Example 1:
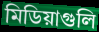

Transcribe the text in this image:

মিডিয়াগুলি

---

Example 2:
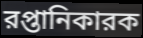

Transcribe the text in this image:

রপ্তানিকারক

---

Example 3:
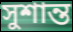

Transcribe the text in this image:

সুশান্ত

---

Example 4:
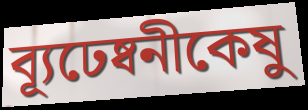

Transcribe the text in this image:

ব্যূঢেষ্বনীকেষু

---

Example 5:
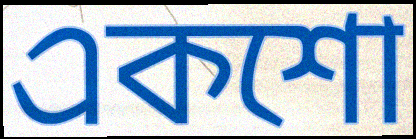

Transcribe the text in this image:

একশো